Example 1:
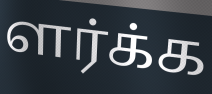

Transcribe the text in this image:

ளர்க்க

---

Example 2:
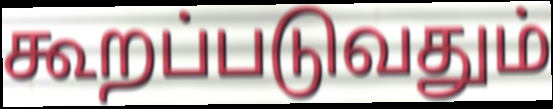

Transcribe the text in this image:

கூறப்படுவதும்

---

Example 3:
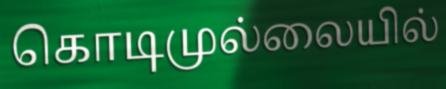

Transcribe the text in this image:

கொடிமுல்லையில்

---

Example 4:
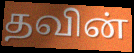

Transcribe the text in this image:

தவின்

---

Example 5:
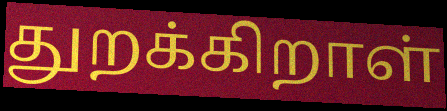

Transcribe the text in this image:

துறக்கிறாள்